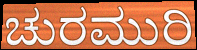
ಚುರಮುರಿ